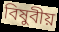
বিষুবীয়